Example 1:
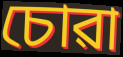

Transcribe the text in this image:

চোৱা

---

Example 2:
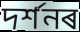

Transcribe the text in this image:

দৰ্শনৰ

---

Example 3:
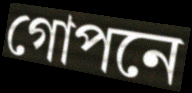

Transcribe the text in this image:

গোপনে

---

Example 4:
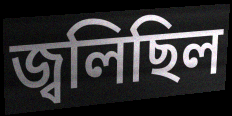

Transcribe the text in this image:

জ্বলিছিল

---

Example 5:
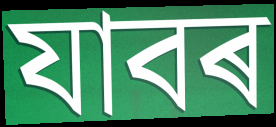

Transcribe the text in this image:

যাবৰ